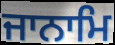
ਜਾਨਾਮਿ